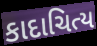
કાદાચિત્ય